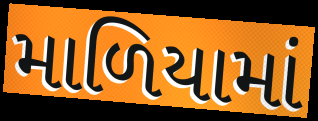
માળિયામાં